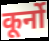
कूर्नो